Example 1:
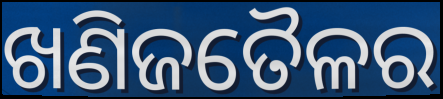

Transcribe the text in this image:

ଖଣିଜତୈଳର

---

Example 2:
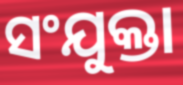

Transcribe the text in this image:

ସଂଯୁକ୍ତା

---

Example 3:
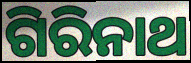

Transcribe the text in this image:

ଗିରିନାଥ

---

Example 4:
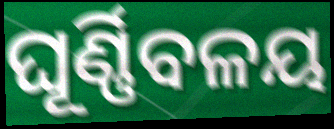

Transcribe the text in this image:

ଘୂର୍ଣ୍ଣିବଳୟ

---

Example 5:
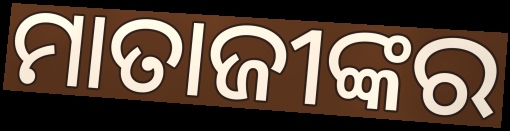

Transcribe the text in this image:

ମାତାଜୀଙ୍କର